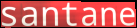
santane